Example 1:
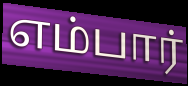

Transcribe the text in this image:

எம்பார்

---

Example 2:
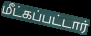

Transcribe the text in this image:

மீட்கப்பட்டார்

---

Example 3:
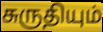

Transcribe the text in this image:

சுருதியும்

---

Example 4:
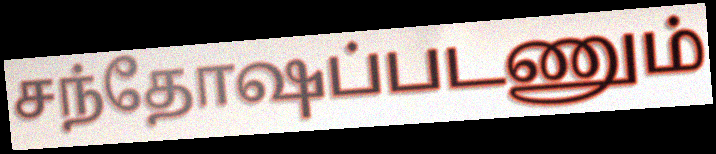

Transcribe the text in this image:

சந்தோஷப்படணும்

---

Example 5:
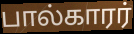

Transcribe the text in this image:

பால்காரர்